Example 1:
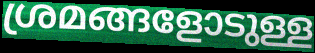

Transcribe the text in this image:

ശ്രമങ്ങളോടുള്ള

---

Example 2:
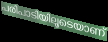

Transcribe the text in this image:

പരിപാടിയിലൂടെയാണ്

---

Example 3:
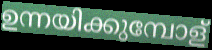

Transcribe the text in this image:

ഉന്നയിക്കുമ്പോള്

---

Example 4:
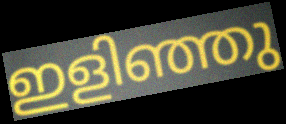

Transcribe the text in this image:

ഇളിഞ്ഞു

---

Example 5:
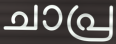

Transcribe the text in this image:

ചാപ്ര